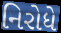
નિરોધે